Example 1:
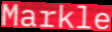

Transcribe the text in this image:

Markle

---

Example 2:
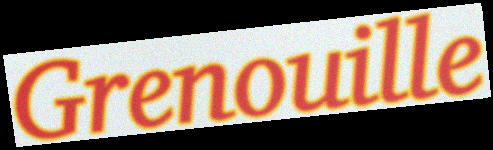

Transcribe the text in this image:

Grenouille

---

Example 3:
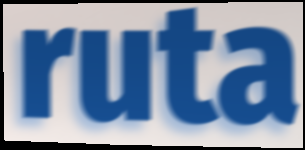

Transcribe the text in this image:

ruta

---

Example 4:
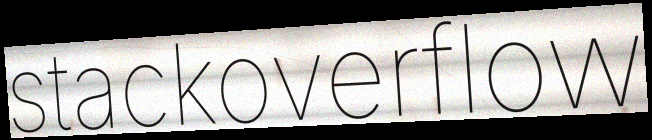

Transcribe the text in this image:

stackoverflow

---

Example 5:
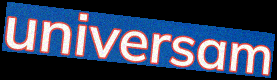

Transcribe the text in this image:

universam